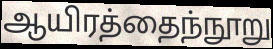
ஆயிரத்தைந்நூறு